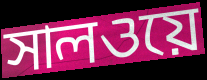
সালওয়ে